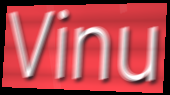
Vinu